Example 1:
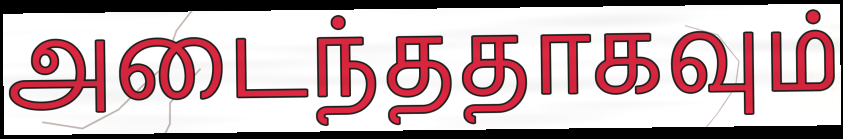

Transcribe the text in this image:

அடைந்ததாகவும்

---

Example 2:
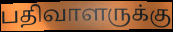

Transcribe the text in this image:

பதிவாளருக்கு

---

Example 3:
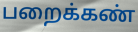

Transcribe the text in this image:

பறைக்கண்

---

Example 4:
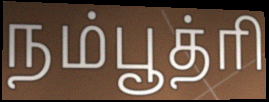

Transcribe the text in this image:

நம்பூத்ரி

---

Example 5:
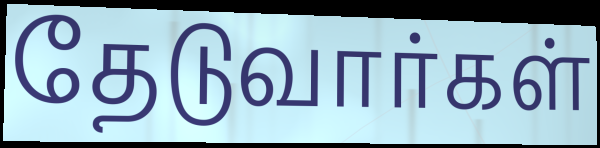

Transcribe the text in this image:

தேடுவார்கள்